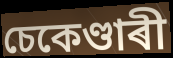
চেকেণ্ডাৰী